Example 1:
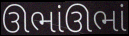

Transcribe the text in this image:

ઊભાંઊભાં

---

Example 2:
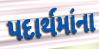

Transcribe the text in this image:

પદાર્થમાંના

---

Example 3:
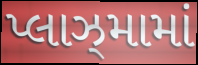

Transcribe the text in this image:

પ્લાઝ્મામાં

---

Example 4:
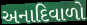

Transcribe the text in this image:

અનાદિવાળો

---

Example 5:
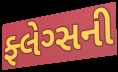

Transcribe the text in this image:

ફ્લેગ્સની